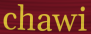
chawi